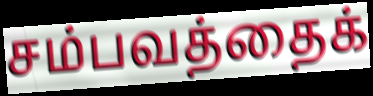
சம்பவத்தைக்